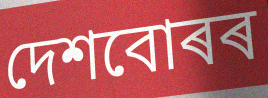
দেশবোৰৰ